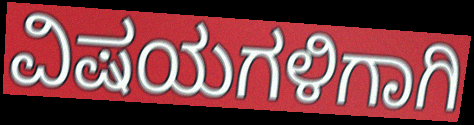
ವಿಷಯಗಳಿಗಾಗಿ